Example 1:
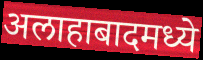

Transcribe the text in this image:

अलाहाबादमध्ये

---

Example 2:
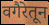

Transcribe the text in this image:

वगैरेतून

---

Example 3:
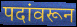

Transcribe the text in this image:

पदांवरून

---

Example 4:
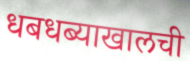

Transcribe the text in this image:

धबधब्याखालची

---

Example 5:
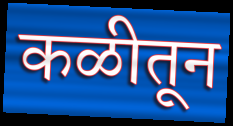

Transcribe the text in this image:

कळीतून